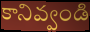
కానివ్వండి